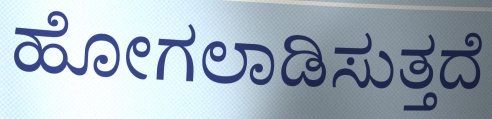
ಹೋಗಲಾಡಿಸುತ್ತದೆ